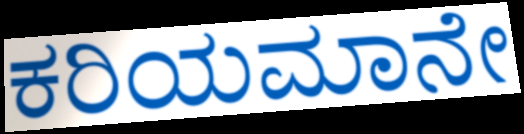
ಕರಿಯಮಾನೇ